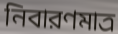
নিবারণমাত্র